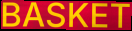
BASKET